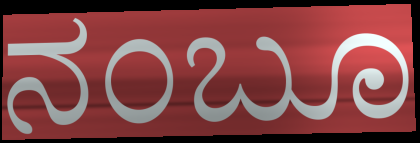
ನಂಬೂ